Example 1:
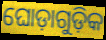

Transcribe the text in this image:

ଘୋଡ଼ାଗୁଡ଼ିକ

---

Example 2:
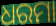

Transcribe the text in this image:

ଧରମା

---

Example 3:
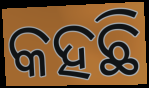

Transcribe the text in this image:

କହଛି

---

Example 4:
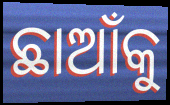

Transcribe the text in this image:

ଛାଆଁକୁ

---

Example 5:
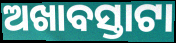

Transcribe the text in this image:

ଅଖାବସ୍ତାଟା